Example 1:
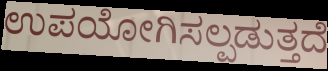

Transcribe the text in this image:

ಉಪಯೋಗಿಸಲ್ಪಡುತ್ತದೆ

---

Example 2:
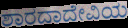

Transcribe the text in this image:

ಶಾರದಾದೇವಿಯ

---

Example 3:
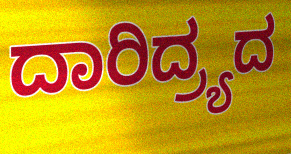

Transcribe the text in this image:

ದಾರಿದ್ರ್ಯದ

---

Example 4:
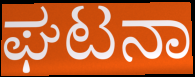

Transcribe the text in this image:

ಘಟನಾ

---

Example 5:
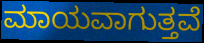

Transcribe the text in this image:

ಮಾಯವಾಗುತ್ತವೆ